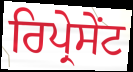
ਰਿਪ੍ਰੇਸੇੰਟ